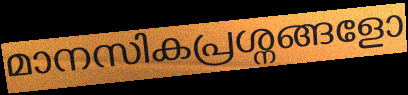
മാനസികപ്രശ്നങ്ങളോ